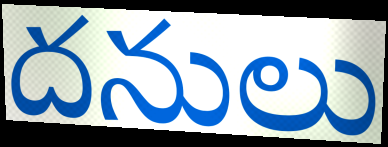
దనులు